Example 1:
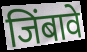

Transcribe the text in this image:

जिंबावे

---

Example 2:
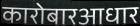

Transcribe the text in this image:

कारोबारआधार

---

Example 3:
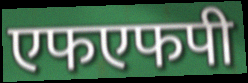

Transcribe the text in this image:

एफएफपी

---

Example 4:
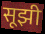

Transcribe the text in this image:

सूझी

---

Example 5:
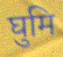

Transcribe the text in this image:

घुमि